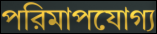
পরিমাপযোগ্য